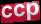
ccp